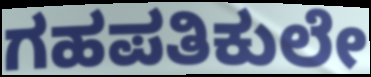
ಗಹಪತಿಕುಲೇ